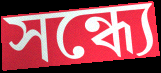
সন্ধ্যে